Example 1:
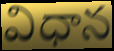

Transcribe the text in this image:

విధాన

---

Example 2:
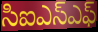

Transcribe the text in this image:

సిఐఎస్ఎఫ్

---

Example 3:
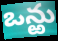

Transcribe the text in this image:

ఒన్ఱు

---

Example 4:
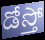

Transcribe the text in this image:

డోస్తో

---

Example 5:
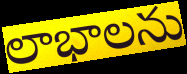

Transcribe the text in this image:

లాభాలను